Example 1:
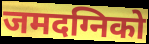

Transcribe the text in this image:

जमदग्निको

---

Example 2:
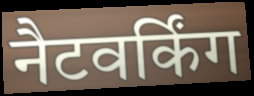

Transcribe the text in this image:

नैटवर्किंग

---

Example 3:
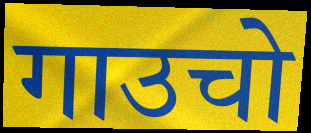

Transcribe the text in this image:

गाउचो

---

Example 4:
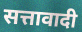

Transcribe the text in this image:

सत्तावादी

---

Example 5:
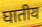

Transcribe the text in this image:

घातीय